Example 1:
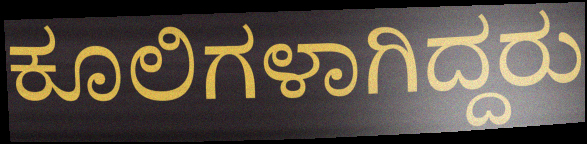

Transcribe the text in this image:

ಕೂಲಿಗಳಾಗಿದ್ದರು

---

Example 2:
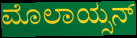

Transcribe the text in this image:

ಮೊಲಾಯ್ಸನ್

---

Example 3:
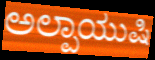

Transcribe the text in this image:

ಅಲ್ಪಾಯುಷಿ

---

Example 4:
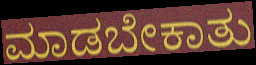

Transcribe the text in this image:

ಮಾಡಬೇಕಾತು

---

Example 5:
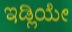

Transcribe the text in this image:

ಇಡ್ಲಿಯೇ